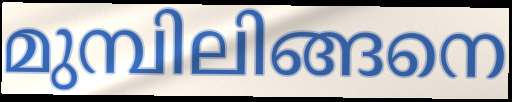
മുമ്പിലിങ്ങനെ